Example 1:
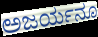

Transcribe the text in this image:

ಅಜರ್ಯನೂ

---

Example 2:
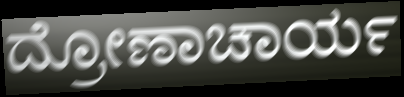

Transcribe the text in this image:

ದ್ರೋಣಾಚಾರ್ಯ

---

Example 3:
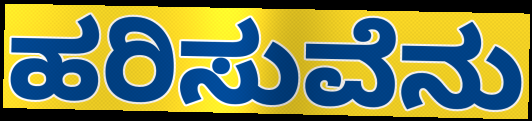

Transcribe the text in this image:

ಹರಿಸುವೆನು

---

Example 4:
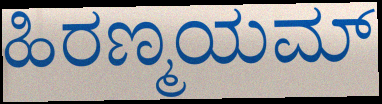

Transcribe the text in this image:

ಹಿರಣ್ಮಯಮ್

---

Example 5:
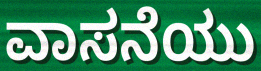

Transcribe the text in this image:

ವಾಸನೆಯು